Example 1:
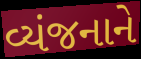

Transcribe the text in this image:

વ્યંજનાને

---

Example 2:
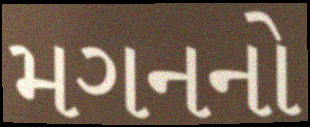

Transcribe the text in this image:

મગનનો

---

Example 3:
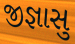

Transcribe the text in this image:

જીજ્ઞાસુ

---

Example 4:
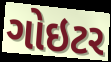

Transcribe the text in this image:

ગોઇટર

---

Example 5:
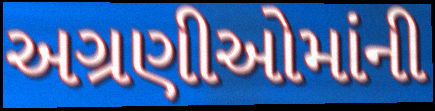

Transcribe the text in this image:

અગ્રણીઓમાંની